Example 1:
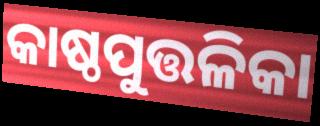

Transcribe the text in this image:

କାଷ୍ଠପୁତ୍ତଳିକା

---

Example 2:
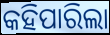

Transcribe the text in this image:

କହିପାରିଲା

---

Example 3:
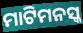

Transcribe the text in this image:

ମାଟିମନସ୍କ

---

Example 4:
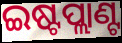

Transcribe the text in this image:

ଇଷ୍ଟପ୍ଲାଣ୍ଟ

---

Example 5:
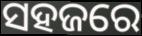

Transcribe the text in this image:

ସହଜରେ